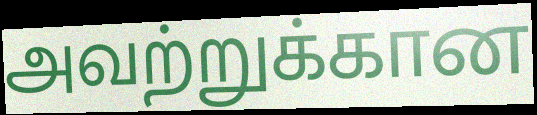
அவற்றுக்கான